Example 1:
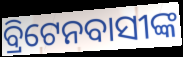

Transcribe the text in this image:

ବ୍ରିଟେନବାସୀଙ୍କ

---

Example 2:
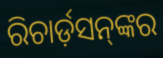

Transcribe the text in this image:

ରିଚାର୍ଡ଼ସନ୍‌ଙ୍କର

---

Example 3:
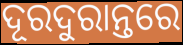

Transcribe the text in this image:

ଦୂରଦୁରାନ୍ତରେ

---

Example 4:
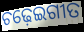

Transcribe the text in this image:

ଚଢ଼େଇଗୀତ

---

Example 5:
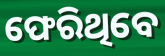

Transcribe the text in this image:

ଫେରିଥିବେ